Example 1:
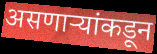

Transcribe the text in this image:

असणाऱ्यांकडून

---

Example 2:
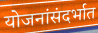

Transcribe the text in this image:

योजनांसंदर्भात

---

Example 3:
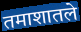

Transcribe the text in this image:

तमाशातले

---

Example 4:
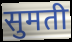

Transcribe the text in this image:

सुमती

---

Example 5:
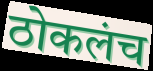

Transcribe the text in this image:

ठोकलंच